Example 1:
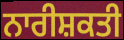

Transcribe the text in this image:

ਨਾਰੀਸ਼ਕਤੀ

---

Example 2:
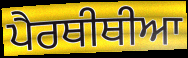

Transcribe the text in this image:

ਪੈਰਥੀਥੀਆ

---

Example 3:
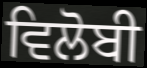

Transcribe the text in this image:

ਵਿਲੋਬੀ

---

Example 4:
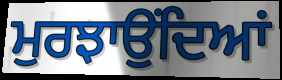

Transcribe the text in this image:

ਮੁਰਝਾਉਂਦਿਆਂ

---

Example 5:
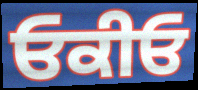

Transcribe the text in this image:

ਓਕੀਓ